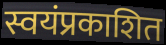
स्वयंप्रकाशित